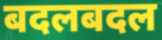
बदलबदल